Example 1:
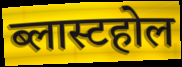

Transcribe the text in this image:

ब्लास्टहोल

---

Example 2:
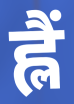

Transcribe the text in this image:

ह्लैं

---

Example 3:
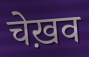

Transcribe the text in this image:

चेख़व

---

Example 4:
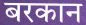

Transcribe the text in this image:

बरकान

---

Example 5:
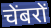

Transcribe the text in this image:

चेंबरों